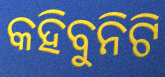
କହିବୁନିଟି